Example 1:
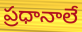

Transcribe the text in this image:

ప్రధానాలే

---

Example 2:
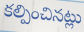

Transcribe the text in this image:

కల్పించినట్లు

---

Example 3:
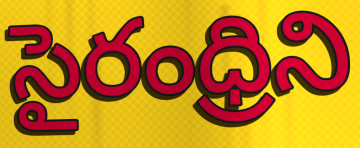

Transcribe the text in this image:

సైరంధ్రిని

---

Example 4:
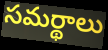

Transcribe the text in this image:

సమర్థాలు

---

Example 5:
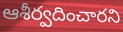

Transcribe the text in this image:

ఆశీర్వదించారని